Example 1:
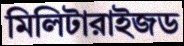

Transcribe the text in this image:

মিলিটারাইজড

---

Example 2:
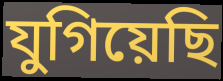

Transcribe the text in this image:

যুগিয়েছি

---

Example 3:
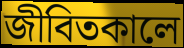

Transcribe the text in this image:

জীবিতকালে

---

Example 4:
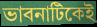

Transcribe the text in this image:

ভাবনাটিকেই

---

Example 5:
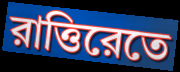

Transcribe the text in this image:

রাত্তিরেতে